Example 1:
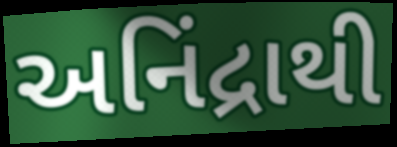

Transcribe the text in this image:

અનિંદ્રાથી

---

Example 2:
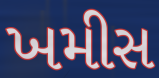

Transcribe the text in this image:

ખમીસ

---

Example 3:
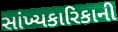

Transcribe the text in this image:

સાંખ્યકારિકાની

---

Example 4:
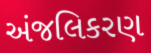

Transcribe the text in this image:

અંજલિકરણ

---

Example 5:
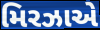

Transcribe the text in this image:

મિરઝાએ